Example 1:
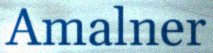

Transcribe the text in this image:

Amalner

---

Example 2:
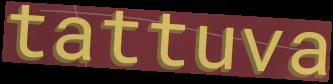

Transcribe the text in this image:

tattuva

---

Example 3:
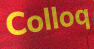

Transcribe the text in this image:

Colloq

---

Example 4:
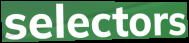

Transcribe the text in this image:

selectors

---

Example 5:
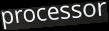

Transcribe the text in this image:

processor